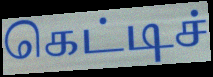
கெட்டிச்